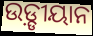
ଉଡ଼୍ଡୀୟାନ